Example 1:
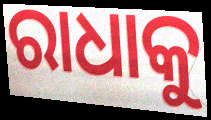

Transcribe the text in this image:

ରାଧାକୁ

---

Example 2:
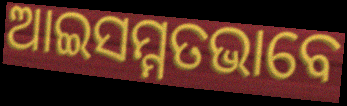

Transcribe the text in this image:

ଆଇସମ୍ମତଭାବେ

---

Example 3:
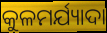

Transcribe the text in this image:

କୁଳମର୍ଯ୍ୟାଦା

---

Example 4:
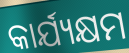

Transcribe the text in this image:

କାର୍ଯ୍ୟକ୍ଷମ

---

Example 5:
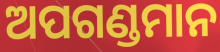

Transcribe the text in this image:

ଅପଗଣ୍ଡମାନ